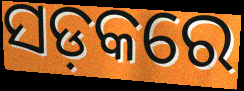
ସଡ଼କରେ